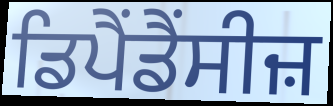
ਡਿਪੈਂਡੈਂਸੀਜ਼